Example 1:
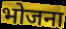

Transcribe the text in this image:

भोजना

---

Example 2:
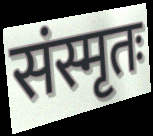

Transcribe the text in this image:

संस्मृतः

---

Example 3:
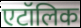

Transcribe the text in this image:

एटॉलिक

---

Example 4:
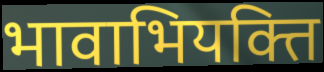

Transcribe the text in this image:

भावाभियक्ति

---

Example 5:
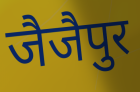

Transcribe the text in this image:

जैजैपुर